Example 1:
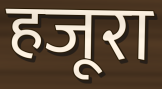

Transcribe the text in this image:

हजूरा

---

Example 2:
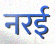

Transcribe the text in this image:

नरई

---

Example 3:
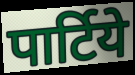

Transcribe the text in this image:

पार्टिये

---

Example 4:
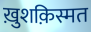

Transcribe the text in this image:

ख़ुशक़िस्मत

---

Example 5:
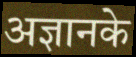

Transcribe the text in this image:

अज्ञानके